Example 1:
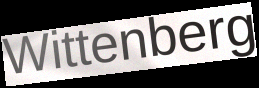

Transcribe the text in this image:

Wittenberg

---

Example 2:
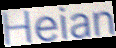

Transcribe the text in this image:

Heian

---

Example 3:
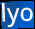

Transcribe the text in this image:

lyo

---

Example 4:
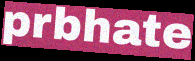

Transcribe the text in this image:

prbhate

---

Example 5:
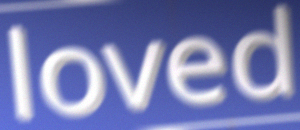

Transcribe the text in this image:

loved